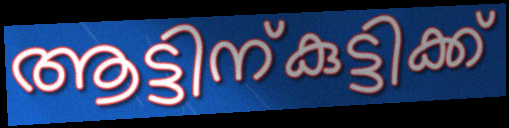
ആട്ടിന്കുട്ടിക്ക്